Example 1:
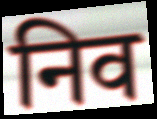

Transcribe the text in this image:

निव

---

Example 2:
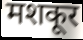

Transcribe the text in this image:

मशकूर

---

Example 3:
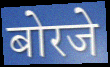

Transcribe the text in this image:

बोरजे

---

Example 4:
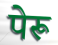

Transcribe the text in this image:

पेरू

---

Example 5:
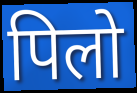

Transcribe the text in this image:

पिलो